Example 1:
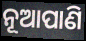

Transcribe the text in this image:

ନୂଆପାଣି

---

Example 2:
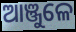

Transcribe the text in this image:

ଆଞ୍ଜୁଳେ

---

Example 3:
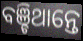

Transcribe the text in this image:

ବଞ୍ଚିଥାନ୍ତେ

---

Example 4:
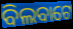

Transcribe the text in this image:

ବିଲବାଟେ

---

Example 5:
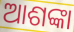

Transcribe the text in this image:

ଆଶଙ୍କା